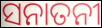
ସନାତନୀ